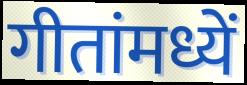
गीतांमध्यें